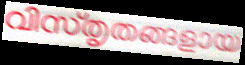
വിസ്തൃതങ്ങളായ